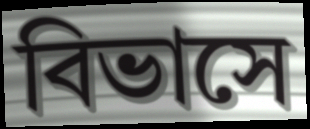
বিভাসে